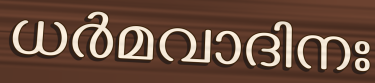
ധർമവാദിനഃ